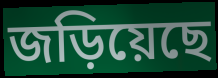
জড়িয়েছে